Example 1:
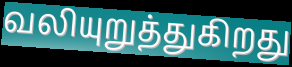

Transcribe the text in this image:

வலியுறுத்துகிறது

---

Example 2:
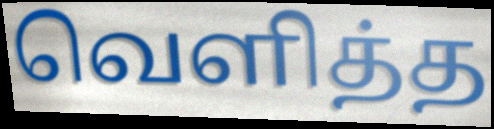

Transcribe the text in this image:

வெளித்த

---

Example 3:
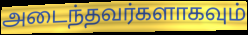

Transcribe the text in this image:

அடைந்தவர்களாகவும்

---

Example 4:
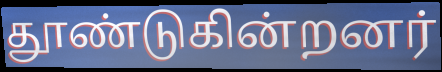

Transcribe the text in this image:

தூண்டுகின்றனர்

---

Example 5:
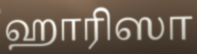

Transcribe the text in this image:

ஹாரிஸா